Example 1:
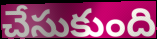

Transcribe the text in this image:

చేసుకుంది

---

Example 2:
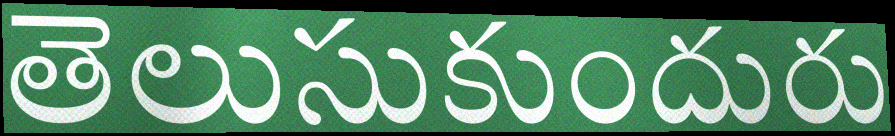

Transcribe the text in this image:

తెలుసుకుందురు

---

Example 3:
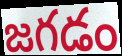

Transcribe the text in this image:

జగడం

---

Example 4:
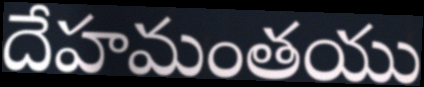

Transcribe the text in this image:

దేహమంతయు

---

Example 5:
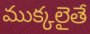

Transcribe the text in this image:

ముక్కలైతే